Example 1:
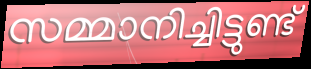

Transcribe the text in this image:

സമ്മാനിച്ചിട്ടുണ്ട്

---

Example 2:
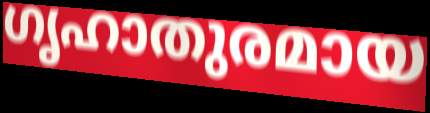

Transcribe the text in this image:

ഗൃഹാതുരമായ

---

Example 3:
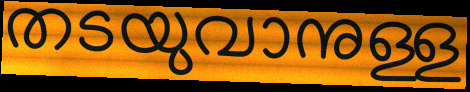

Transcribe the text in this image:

തടയുവാനുള്ള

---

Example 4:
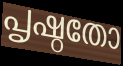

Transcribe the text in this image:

പൃഷ്ഠതോ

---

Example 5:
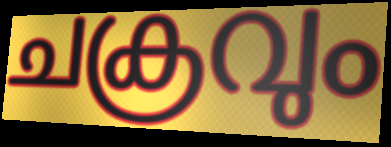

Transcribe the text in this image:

ചക്രവും